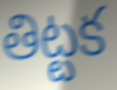
తిట్టక